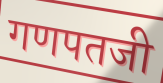
गणपतजी